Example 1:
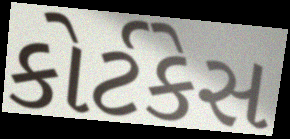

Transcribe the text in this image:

કોર્ટકેસ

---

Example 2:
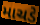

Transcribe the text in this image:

માચડે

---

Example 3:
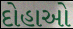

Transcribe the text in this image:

દોહાઓ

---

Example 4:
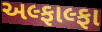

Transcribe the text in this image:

અલ્ફાલ્ફા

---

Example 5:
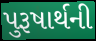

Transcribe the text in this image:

પુરૂષાર્થની